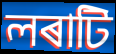
লৰাটি